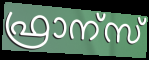
ഫ്രാന്സ്